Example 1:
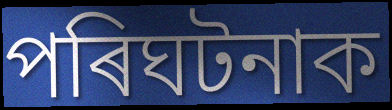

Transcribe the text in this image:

পৰিঘটনাক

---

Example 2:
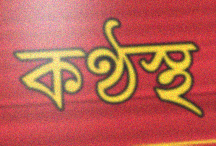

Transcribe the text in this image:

কণ্ঠস্থ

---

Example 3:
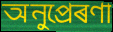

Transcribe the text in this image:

অনুপ্ৰেৰণা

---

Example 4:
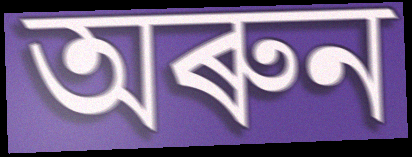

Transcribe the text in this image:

অৰুন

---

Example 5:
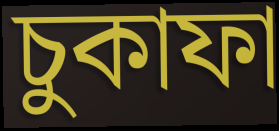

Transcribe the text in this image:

চুকাফা